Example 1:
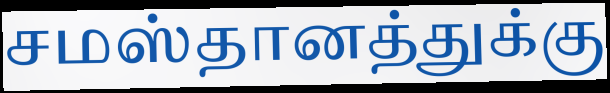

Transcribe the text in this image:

சமஸ்தானத்துக்கு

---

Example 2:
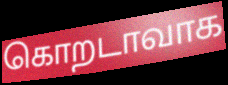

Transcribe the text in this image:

கொறடாவாக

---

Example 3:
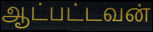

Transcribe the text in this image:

ஆட்பட்டவன்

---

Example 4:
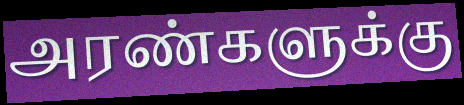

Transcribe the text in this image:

அரண்களுக்கு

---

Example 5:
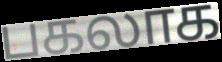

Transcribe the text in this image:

பகலாக